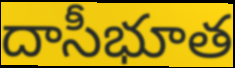
దాసీభూత